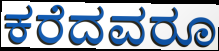
ಕರೆದವರೂ